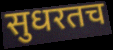
सुधरतच